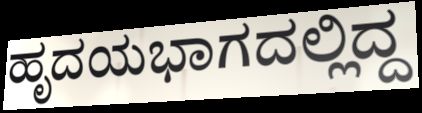
ಹೃದಯಭಾಗದಲ್ಲಿದ್ದ